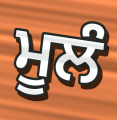
ਮੂਲੰ